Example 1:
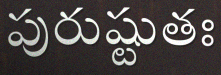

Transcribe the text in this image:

పురుష్టుతః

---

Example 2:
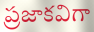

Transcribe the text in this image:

ప్రజాకవిగా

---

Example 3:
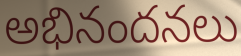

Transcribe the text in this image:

అభినందనలు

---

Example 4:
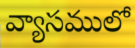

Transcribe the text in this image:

వ్యాసములో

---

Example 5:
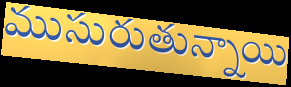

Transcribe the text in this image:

ముసురుతున్నాయి